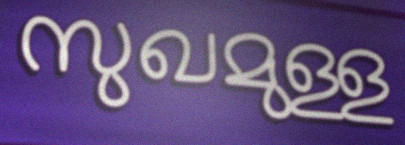
സുഖമുള്ള